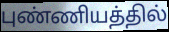
புண்ணியத்தில்